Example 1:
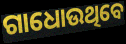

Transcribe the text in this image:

ଗାଧୋଉଥିବେ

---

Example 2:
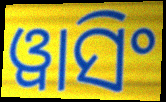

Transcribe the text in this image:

ୱାସିଂ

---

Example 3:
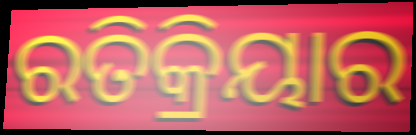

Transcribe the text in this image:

ରତିକ୍ରିୟାର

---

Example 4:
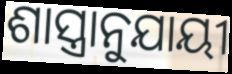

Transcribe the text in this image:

ଶାସ୍ତ୍ରାନୁଯାୟୀ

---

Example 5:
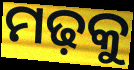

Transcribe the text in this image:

ମଢ଼କୁ